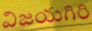
విజయగిరి